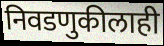
निवडणुकीलाही